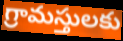
గ్రామస్తులకు